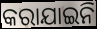
କରାଯାଇନି